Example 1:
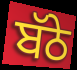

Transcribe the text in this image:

ਬੱਠੇ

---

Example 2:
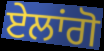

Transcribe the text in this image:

ਏਲਾਂਗੋ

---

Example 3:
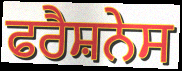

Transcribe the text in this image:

ਫਰੈਸ਼ਨੇਸ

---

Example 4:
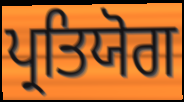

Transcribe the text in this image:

ਪ੍ਰਤਿਯੋਗ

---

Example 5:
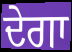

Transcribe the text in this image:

ਦੇਗਾ